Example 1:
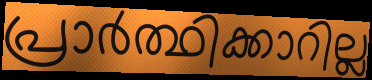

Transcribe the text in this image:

പ്രാർത്ഥിക്കാറില്ല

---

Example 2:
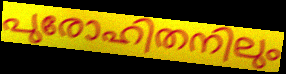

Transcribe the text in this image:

പുരോഹിതനിലും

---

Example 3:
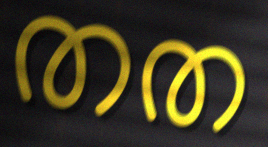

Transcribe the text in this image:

തത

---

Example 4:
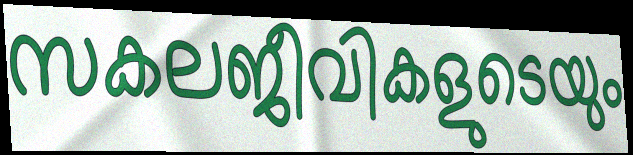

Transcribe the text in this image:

സകലജീവികളുടെയും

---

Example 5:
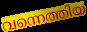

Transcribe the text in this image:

വന്നെത്തിയ